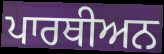
ਪਾਰਥੀਅਨ